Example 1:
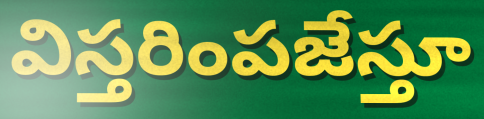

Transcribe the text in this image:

విస్తరింపజేస్తూ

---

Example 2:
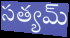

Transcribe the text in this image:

సత్యమ్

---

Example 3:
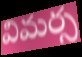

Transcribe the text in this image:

విమర్స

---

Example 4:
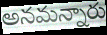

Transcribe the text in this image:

అనమన్నారు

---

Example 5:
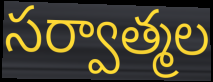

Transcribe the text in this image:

సర్వాత్మల